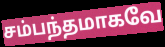
சம்பந்தமாகவே